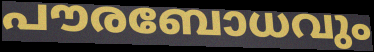
പൗരബോധവും